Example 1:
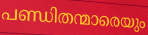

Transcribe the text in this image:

പണ്ഡിതന്മാരെയും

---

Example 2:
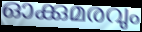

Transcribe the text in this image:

ഓക്കുമരവും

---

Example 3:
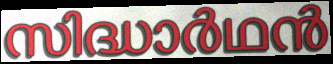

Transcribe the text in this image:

സിദ്ധാർഥൻ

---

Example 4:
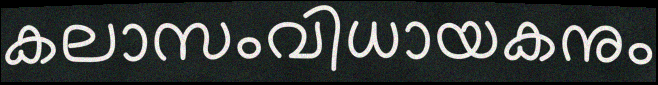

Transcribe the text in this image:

കലാസംവിധായകനും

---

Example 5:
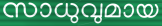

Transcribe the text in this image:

സാധുവുമായ